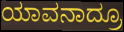
ಯಾವನಾದ್ರೂ